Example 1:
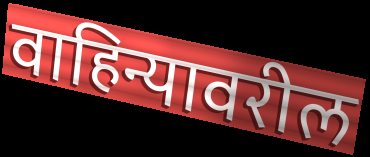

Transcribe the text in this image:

वाहिन्यावरील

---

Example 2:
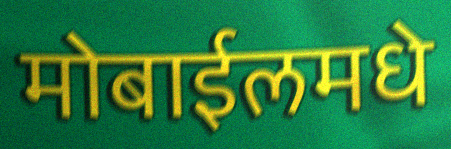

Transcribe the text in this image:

मोबाईलमधे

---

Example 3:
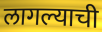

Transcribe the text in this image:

लागल्याची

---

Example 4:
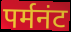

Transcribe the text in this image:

पर्मनंट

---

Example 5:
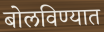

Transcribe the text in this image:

बोलविण्यात